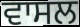
ਵਾਸਲ